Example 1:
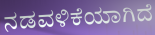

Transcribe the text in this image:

ನಡವಳಿಕೆಯಾಗಿದೆ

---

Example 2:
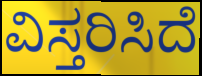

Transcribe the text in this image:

ವಿಸ್ತರಿಸಿದೆ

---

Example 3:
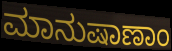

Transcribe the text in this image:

ಮಾನುಷಾಣಾಂ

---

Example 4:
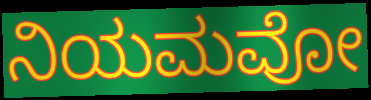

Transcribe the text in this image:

ನಿಯಮವೋ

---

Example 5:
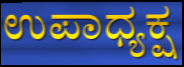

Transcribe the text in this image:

ಉಪಾಧ್ಯಕ್ಷ